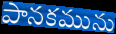
పానకమును